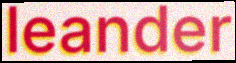
leander